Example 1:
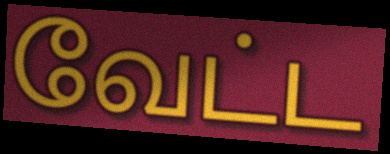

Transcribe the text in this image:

வேட்ட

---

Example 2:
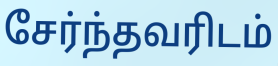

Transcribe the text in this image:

சேர்ந்தவரிடம்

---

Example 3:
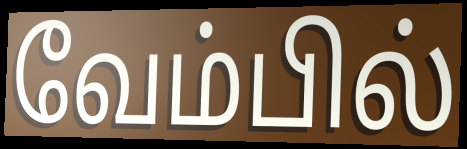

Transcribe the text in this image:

வேம்பில்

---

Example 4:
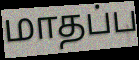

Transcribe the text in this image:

மாதப்ப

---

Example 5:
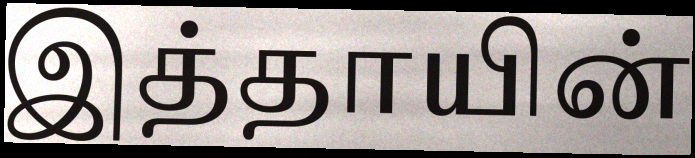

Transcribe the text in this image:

இத்தாயின்